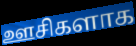
ஊசிகளாக